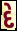
દે